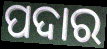
ପଦାର